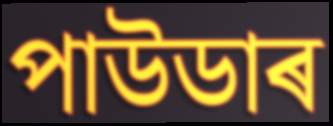
পাউডাৰ